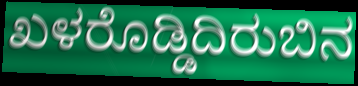
ಖಳರೊಡ್ಡಿದಿರುಬಿನ